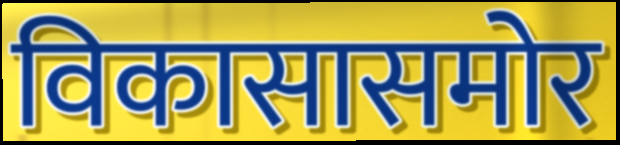
विकासासमोर